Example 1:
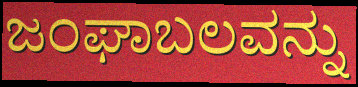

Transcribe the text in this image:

ಜಂಘಾಬಲವನ್ನು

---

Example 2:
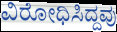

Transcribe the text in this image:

ವಿರೋಧಿಸಿದ್ದವು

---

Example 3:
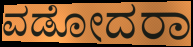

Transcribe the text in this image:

ವಡೋದರಾ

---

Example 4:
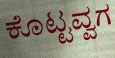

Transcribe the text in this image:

ಕೊಟ್ಟವ್ವಗ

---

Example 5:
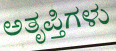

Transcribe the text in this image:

ಅತೃಪ್ತಿಗಳು